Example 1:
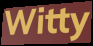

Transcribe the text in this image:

Witty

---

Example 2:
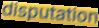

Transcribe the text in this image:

disputation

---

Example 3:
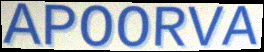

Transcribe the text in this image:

APOORVA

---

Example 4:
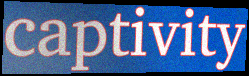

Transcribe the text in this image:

captivity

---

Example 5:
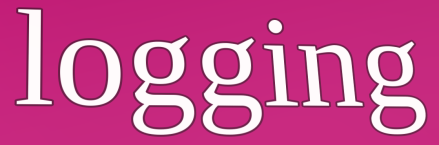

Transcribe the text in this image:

logging